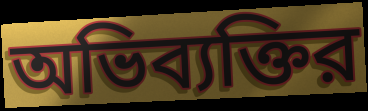
অভিব্যক্তির